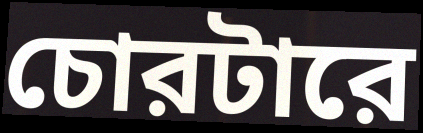
চোরটারে